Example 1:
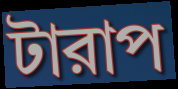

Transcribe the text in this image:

টারাপ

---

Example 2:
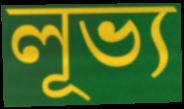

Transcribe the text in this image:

লূভ্য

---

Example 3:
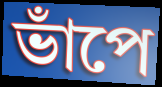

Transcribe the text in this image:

ভাঁপে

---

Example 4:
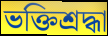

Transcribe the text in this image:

ভক্তিশ্রদ্ধা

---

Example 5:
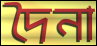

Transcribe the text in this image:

দৈনা